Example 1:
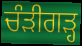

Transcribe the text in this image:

ਚੰੜੀਗੜ੍ਹ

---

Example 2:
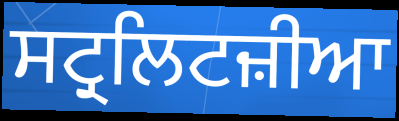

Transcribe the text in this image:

ਸਟ੍ਰਲਿਟਜ਼ੀਆ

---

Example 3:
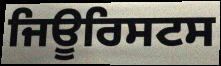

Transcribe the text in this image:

ਜਿਊਰਿਸਟਸ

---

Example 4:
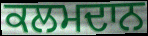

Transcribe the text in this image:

ਕਲਮਦਾਨ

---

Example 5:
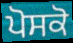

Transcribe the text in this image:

ਪੋਸਕੋ